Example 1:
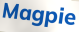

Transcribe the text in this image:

Magpie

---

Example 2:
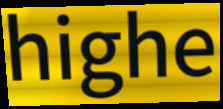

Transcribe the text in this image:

highe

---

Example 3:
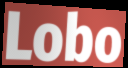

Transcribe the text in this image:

Lobo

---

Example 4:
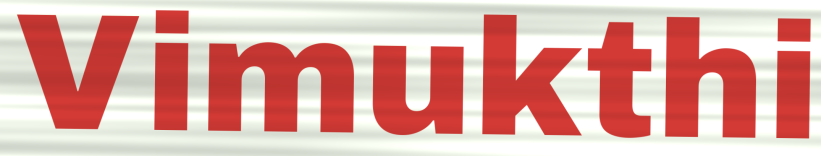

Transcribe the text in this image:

Vimukthi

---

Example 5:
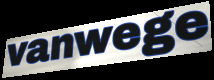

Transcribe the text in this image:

vanwege